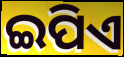
ଇପିଏ